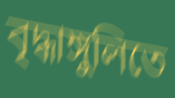
বৃদ্ধাঙ্গুলিতে